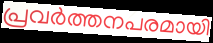
പ്രവർത്തനപരമായി